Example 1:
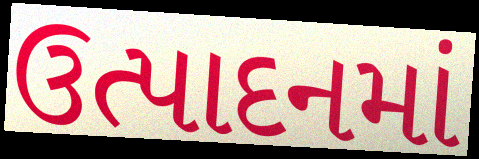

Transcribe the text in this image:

ઉત્પાદનમાં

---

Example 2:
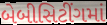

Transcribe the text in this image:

બેબીસિટીંગમાં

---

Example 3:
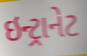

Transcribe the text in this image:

ઇન્ટ્રાનેટ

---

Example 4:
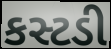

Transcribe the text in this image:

કસ્ટડી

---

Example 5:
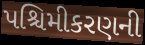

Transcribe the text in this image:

પશ્ચિમીકરણની